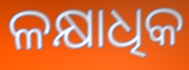
ଳକ୍ଷାଧିକ